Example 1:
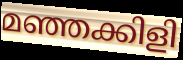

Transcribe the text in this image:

മഞ്ഞക്കിളി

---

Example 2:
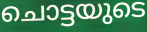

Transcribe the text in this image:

ചൊട്ടയുടെ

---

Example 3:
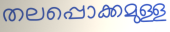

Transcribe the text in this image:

തലപ്പൊക്കമുള്ള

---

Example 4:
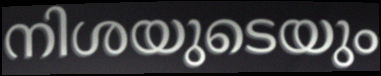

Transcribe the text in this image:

നിശയുടെയും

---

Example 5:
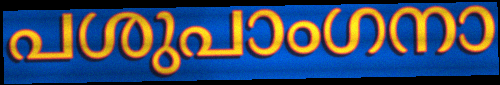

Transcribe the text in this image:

പശുപാംഗനാ